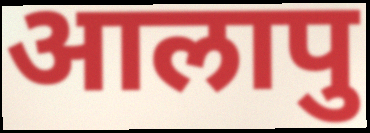
आलापु